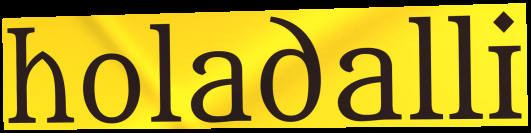
holadalli